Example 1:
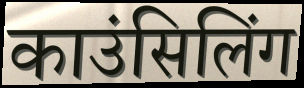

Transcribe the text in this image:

काउंसिलिंग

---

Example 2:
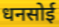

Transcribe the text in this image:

धनसोई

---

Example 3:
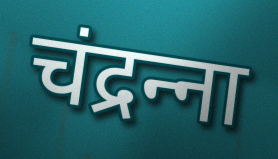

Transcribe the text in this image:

चंद्रन्ना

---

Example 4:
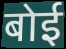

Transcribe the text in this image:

बोई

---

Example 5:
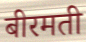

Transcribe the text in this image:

बीरमती